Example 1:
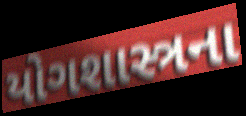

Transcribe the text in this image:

યોગશાસ્ત્રના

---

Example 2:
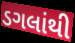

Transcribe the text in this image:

ડગલાંથી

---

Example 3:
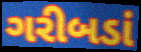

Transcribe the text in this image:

ગરીબડાં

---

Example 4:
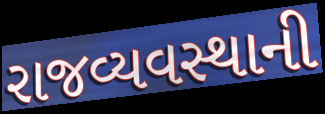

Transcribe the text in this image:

રાજવ્યવસ્થાની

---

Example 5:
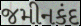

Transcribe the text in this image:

જમીનકંદ